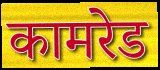
कामरेड